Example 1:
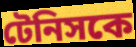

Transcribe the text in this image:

টেনিসকে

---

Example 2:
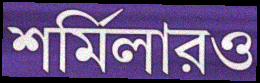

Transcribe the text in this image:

শর্মিলারও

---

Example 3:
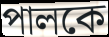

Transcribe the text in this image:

পালকে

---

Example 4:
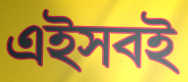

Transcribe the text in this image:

এইসবই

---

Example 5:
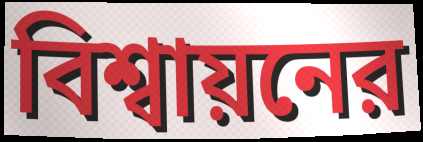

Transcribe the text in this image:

বিশ্বায়নের